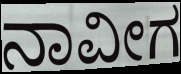
ನಾವೀಗ